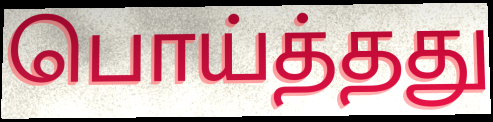
பொய்த்தது